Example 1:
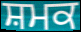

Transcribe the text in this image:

ਸ਼ਮਕ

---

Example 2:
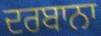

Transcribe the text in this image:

ਦਰਬਾਨਾ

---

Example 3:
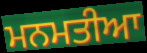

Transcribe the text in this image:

ਮਨਮਤੀਆ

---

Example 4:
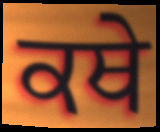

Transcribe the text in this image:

ਕਥੇ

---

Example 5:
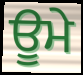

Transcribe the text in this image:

ਊਮੇ